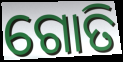
ଗୋତି